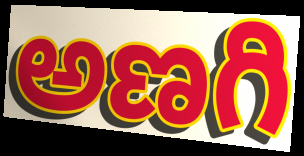
అణగి